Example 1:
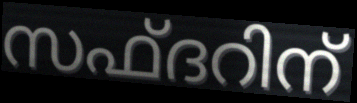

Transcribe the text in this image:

സഫ്ദറിന്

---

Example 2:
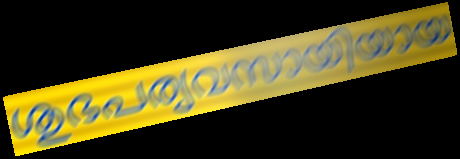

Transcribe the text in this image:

ശുഭപര്യവസായിയായ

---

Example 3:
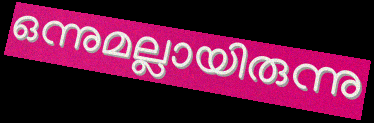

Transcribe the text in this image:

ഒന്നുമല്ലായിരുന്നു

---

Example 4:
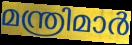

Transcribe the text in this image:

മന്ത്രിമാർ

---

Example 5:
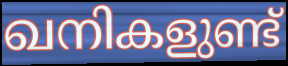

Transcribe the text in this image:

ഖനികളുണ്ട്